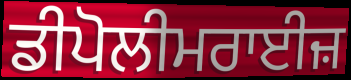
ਡੀਪੋਲੀਮਰਾਈਜ਼